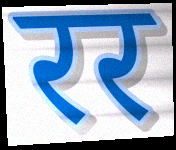
रर